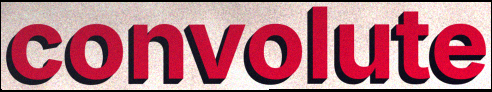
convolute